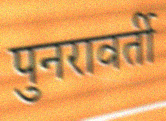
पुनरावर्ती